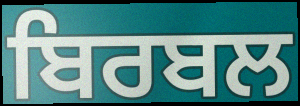
ਬਿਰਬਲ